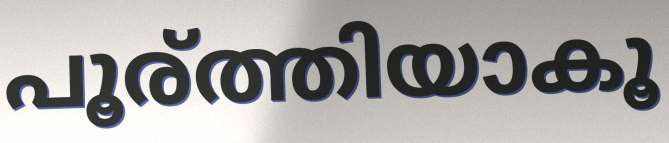
പൂര്ത്തിയാകൂ